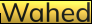
Wahed